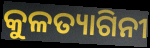
କୁଳତ୍ୟାଗିନୀ